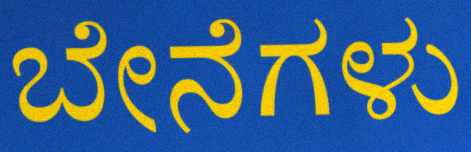
ಬೇನೆಗಳು